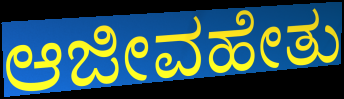
ಆಜೀವಹೇತು